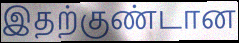
இதற்குண்டான